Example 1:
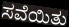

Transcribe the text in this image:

ಸವೆಯಿತು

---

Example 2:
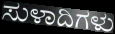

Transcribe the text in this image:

ಸುಳಾದಿಗಳು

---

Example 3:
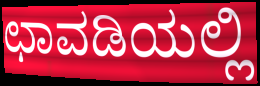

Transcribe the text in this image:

ಛಾವಡಿಯಲ್ಲಿ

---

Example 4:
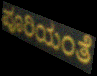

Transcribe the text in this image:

ಪೂರಿಯಂತೆ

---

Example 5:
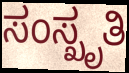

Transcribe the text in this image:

ಸಂಸ್ಖೃತಿ